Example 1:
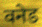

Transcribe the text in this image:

वनेड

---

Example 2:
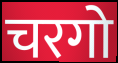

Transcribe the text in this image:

चरगो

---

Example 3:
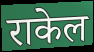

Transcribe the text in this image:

राकेल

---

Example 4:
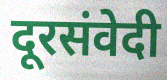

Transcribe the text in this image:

दूरसंवेदी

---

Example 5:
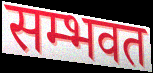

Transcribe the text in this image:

सम्भवत